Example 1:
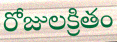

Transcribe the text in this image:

రోజులక్రితం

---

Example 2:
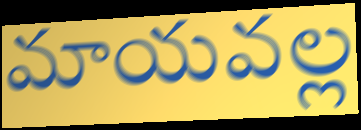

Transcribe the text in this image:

మాయవల్ల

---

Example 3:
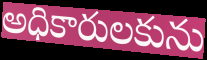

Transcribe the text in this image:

అధికారులకును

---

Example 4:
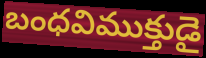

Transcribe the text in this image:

బంధవిముక్తుడై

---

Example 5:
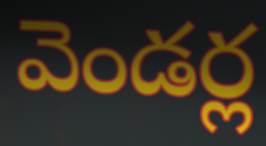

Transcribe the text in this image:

వెండర్ల